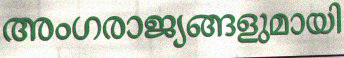
അംഗരാജ്യങ്ങളുമായി